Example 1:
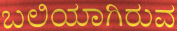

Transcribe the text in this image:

ಬಲಿಯಾಗಿರುವ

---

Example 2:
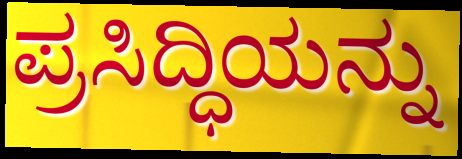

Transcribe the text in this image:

ಪ್ರಸಿದ್ಧಿಯನ್ನು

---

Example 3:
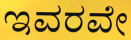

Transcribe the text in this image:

ಇವರವೇ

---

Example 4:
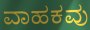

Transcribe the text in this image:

ವಾಹಕವು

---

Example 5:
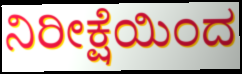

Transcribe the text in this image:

ನಿರೀಕ್ಷೆಯಿಂದ